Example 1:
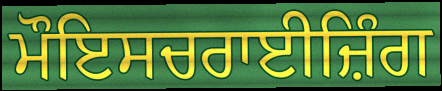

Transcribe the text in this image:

ਮੌਇਸਚਰਾਈਜ਼ਿੰਗ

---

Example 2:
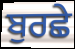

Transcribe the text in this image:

ਬੁਰਛੇ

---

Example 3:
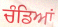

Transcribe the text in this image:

ਚੰਡਿਆਂ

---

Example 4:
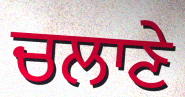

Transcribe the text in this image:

ਚਲਾਣੇ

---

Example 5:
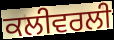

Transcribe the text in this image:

ਕਲੀਵਰਲੀ